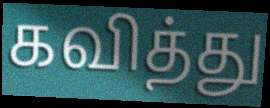
கவித்து